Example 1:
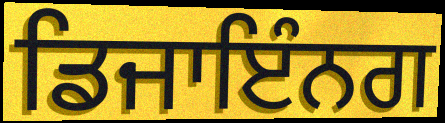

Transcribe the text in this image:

ਡਿਜਾਇੰਨਗ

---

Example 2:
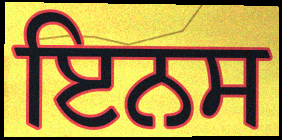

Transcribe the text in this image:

ਇਨਸ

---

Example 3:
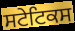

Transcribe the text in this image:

ਸਟੇਟਿਕਸ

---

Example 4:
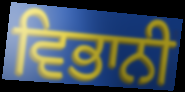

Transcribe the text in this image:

ਵਿਭਾਨੀ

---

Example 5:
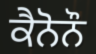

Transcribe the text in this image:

ਕੈਨੋਨੌ